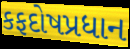
કફદોષપ્રધાન